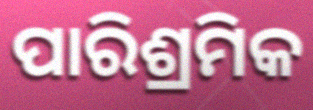
ପାରିଶ୍ରମିକ